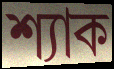
শ্যাক